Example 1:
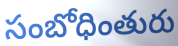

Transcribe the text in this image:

సంబోధింతురు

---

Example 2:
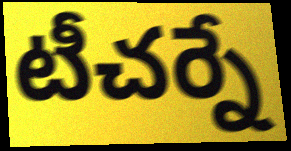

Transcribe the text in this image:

టీచర్నే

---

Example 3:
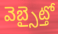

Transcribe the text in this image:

వెబ్సైట్తో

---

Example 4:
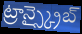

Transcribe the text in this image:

ట్రాన్స్క్రైబ్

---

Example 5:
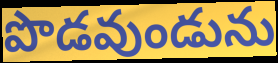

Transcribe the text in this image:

పొడవుండును